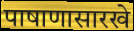
पाषाणासारखे